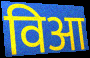
विआ